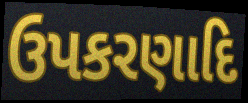
ઉપકરણાદિ